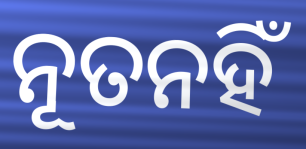
ନୂତନହିଁ